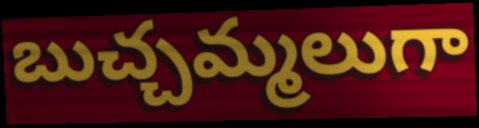
బుచ్చమ్మలుగా